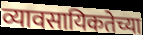
व्यावसायिकतेच्या